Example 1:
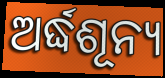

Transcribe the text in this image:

ଅର୍ଦ୍ଧଶୂନ୍ୟ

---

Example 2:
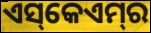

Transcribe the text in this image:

ଏସ୍‌କେଏମ୍‌ର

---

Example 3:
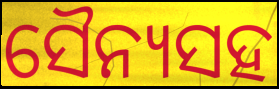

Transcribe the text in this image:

ସୈନ୍ୟସହ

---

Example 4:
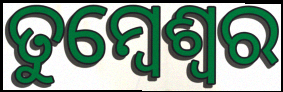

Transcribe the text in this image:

ତୁମ୍ବେଶ୍ଵର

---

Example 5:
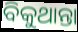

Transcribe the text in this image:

ବିକୁଥାନ୍ତା